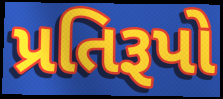
પ્રતિરૂપો